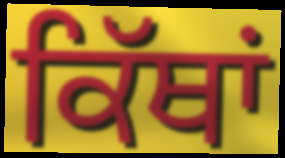
ਕਿੱਥਾਂ